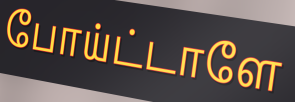
போய்ட்டாளே